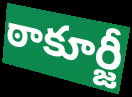
ఠాకూర్జీ